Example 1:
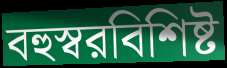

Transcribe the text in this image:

বহুস্বরবিশিষ্ট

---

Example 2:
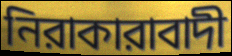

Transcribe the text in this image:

নিরাকারাবাদী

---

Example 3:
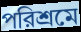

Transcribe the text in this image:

পরিশ্রমে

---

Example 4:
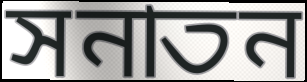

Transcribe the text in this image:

সনাতন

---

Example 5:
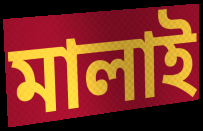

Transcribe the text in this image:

মালাই